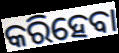
କରିହେବା